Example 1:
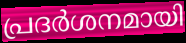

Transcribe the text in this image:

പ്രദർശനമായി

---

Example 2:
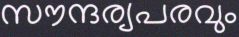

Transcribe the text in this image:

സൗന്ദര്യപരവും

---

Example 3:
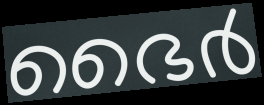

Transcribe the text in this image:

ഭൈർ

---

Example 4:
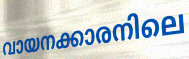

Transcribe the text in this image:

വായനക്കാരനിലെ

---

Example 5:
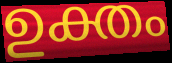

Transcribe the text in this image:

ഉക്തം